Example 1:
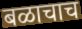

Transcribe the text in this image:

बळाचाच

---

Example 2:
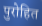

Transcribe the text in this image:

पुरोहित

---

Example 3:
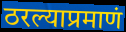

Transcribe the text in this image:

ठरल्याप्रमाणं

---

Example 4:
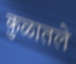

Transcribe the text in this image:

कुळातले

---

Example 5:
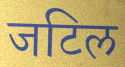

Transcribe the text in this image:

जटिल